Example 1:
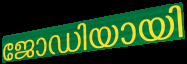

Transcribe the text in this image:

ജോഡിയായി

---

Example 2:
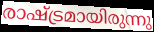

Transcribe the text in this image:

രാഷ്ട്രമായിരുന്നു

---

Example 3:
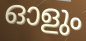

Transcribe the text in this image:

ഓളും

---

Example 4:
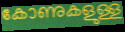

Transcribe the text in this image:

കോണുകളുള്ള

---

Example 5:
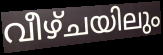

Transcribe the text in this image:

വീഴ്ചയിലും